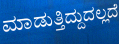
ಮಾಡುತ್ತಿದ್ದುದಲ್ಲದೆ